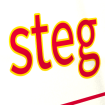
steg